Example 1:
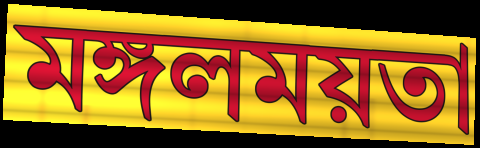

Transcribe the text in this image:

মঙ্গলময়তা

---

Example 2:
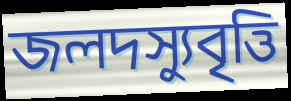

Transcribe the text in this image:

জলদস্যুবৃত্তি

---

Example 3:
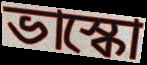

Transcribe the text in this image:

ভাস্কো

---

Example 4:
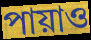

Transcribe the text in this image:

পায়াও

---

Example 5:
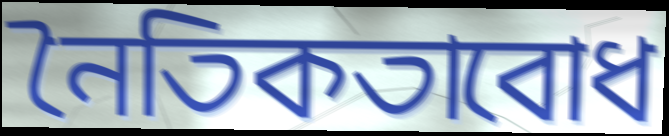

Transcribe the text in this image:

নৈতিকতাবোধ